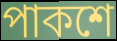
পাকশে